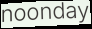
noonday